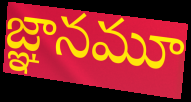
జ్ఞానమూ